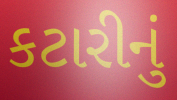
કટારીનું